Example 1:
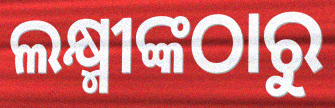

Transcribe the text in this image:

ଲକ୍ଷ୍ମୀଙ୍କଠାରୁ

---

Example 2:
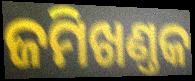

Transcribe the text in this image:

ଜମିଖଣ୍ତକ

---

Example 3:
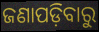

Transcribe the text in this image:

ଜଣାପଡ଼ିବାରୁ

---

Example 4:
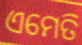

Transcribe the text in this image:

ଏମେତି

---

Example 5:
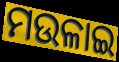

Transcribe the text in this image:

ମଉଳାଇ